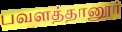
பவளத்தானூர்